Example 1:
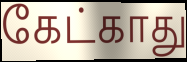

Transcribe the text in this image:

கேட்காது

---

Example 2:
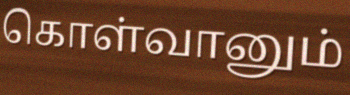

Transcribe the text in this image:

கொள்வானும்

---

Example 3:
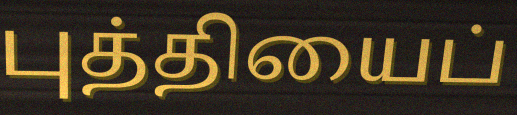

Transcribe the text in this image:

புத்தியைப்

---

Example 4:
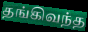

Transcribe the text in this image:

தங்கிவந்த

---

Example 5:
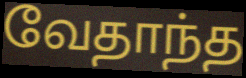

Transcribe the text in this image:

வேதாந்த